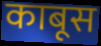
काबूस